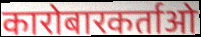
कारोबारकर्ताओ